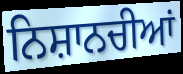
ਨਿਸ਼ਾਨਚੀਆਂ